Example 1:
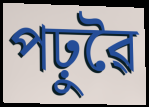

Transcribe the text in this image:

পঢ়ুৱৈ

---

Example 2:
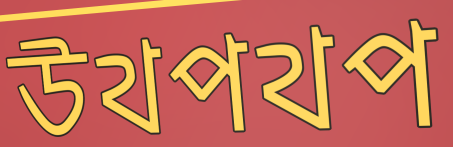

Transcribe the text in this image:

উথপথপ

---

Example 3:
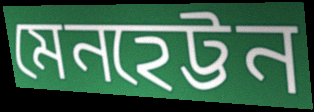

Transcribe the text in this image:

মেনহেট্টন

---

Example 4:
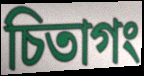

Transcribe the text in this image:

চিতাগং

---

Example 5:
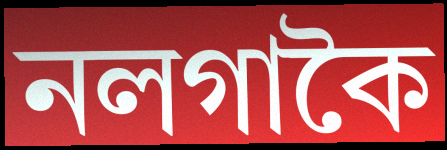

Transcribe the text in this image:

নলগাকৈ